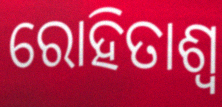
ରୋହିତାଶ୍ୱ